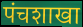
पंचशाखा